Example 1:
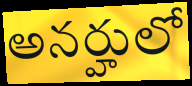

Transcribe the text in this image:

అనర్హులో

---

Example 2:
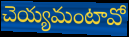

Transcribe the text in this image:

చెయ్యమంటావో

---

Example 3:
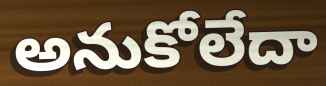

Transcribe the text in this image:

అనుకోలేదా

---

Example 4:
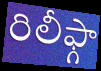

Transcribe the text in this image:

రిలీఫ్గా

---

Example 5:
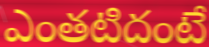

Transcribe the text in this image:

ఎంతటిదంటే